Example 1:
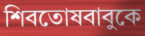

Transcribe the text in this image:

শিবতোষবাবুকে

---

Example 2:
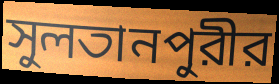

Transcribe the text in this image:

সুলতানপুরীর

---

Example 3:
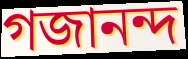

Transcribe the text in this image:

গজানন্দ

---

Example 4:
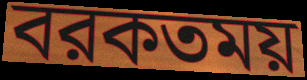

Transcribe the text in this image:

বরকতময়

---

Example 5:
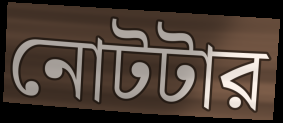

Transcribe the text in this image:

নোটটার